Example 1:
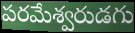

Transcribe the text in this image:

పరమేశ్వరుడగు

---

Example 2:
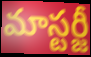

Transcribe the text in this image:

మాస్టర్జీ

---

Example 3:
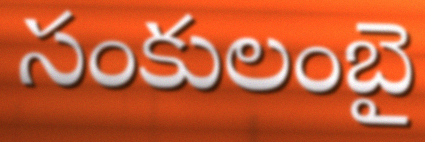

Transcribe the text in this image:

సంకులంబై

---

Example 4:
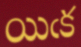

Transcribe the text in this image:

యిఁక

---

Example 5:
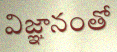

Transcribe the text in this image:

విజ్ఞానంతో